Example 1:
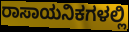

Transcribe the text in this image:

ರಾಸಾಯನಿಕಗಳಲ್ಲಿ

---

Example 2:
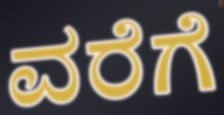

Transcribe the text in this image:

ವರೆಗೆ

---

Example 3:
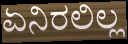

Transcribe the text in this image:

ಏನಿರಲಿಲ್ಲ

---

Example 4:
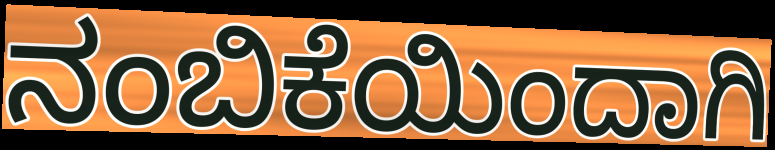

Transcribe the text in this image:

ನಂಬಿಕೆಯಿಂದಾಗಿ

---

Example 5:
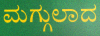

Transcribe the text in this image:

ಮಗ್ಗುಲಾದ